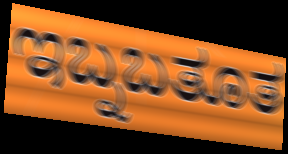
ಇಬ್ನಬತೂತ